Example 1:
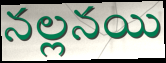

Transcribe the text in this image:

నల్లనయి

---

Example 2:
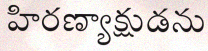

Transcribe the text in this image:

హిరణ్యాక్షుడను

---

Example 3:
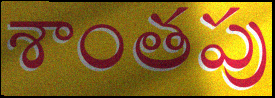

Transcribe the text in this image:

శాంతపు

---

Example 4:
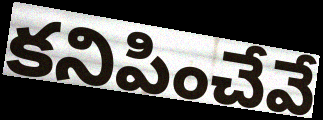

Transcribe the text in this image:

కనిపించేవే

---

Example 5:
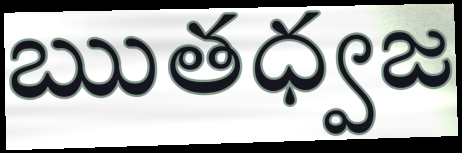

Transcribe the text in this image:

ఋతధ్వజ